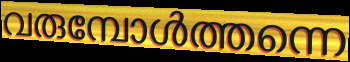
വരുമ്പോൾത്തന്നെ